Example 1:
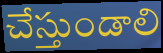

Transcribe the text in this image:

చేస్తుండాలి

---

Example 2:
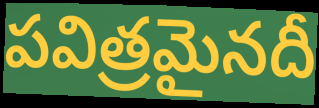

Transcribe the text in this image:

పవిత్రమైనదీ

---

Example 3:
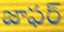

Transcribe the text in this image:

జాఫర్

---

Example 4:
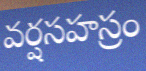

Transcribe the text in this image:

వర్షసహస్రం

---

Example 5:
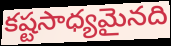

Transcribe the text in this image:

కష్టసాధ్యమైనది